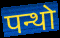
पन्थो